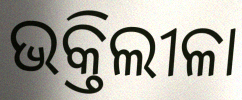
ଭକ୍ତିଲୀଳା